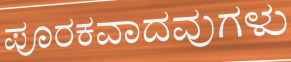
ಪೂರಕವಾದವುಗಳು